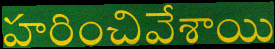
హరించివేశాయి